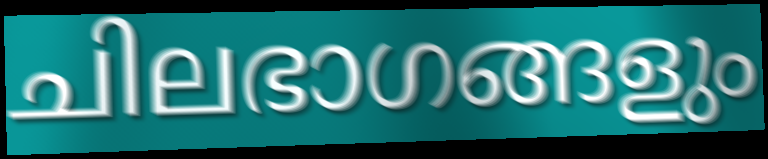
ചിലഭാഗങ്ങളും